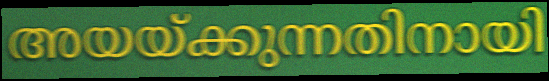
അയയ്ക്കുന്നതിനായി